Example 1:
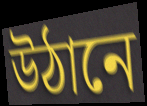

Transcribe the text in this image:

উঠানে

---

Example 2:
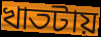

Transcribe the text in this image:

খাতটায়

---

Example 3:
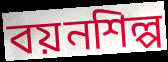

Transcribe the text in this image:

বয়নশিল্প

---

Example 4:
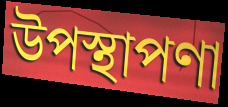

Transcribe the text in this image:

উপস্থাপণা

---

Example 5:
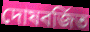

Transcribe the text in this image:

দোষবর্জিত